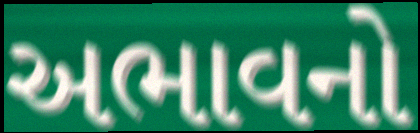
અભાવનો